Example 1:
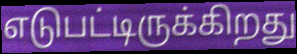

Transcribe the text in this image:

எடுபட்டிருக்கிறது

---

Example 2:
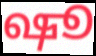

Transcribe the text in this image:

ஷூ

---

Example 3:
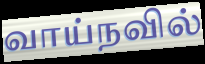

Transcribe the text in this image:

வாய்நவில்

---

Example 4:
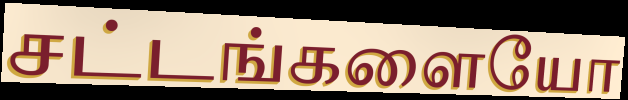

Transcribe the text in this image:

சட்டங்களையோ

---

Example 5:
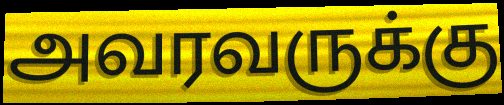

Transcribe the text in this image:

அவரவருக்கு